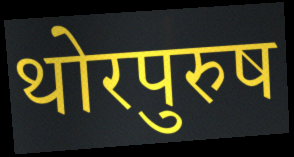
थोरपुरुष